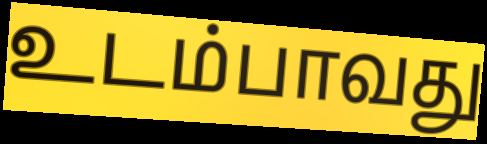
உடம்பாவது